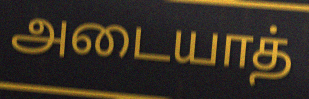
அடையாத்